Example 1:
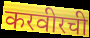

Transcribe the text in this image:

करवीरची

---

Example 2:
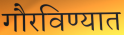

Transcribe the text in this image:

गौरविण्यात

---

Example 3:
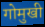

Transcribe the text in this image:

गोमुखी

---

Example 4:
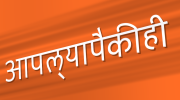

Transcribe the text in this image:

आपल्यापैकीही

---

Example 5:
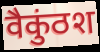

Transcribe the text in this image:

वैकुंठश